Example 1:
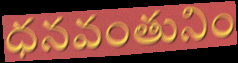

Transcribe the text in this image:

ధనవంతునిం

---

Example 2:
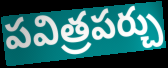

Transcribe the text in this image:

పవిత్రపర్చు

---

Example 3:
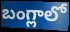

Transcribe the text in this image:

బంగ్లాలో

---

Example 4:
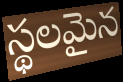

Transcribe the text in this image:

స్థలమైన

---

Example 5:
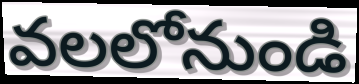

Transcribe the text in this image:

వలలోనుండి